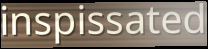
inspissated